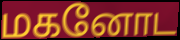
மகனோட